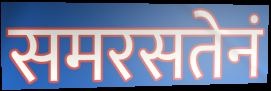
समरसतेनं